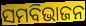
ସମବିଭାଜନ